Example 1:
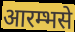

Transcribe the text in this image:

आरम्भसे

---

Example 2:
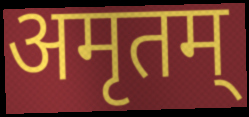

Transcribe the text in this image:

अमृतम्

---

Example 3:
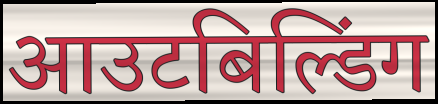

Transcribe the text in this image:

आउटबिल्डिंग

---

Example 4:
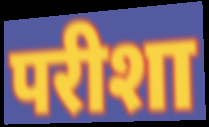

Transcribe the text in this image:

परीशा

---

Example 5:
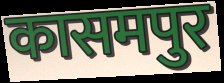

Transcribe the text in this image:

कासमपुर